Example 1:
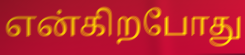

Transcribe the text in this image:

என்கிறபோது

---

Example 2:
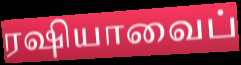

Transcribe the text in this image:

ரஷியாவைப்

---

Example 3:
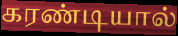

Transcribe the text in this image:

கரண்டியால்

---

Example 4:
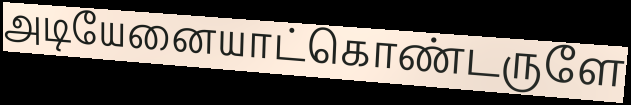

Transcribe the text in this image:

அடியேனையாட்கொண்டருளே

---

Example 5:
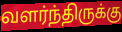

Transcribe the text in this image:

வளர்ந்திருக்கு